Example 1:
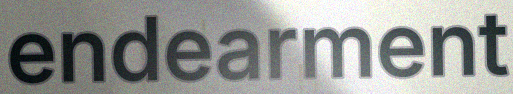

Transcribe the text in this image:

endearment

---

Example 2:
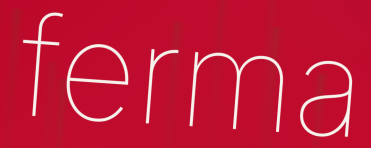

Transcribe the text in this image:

ferma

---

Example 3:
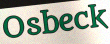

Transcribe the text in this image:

Osbeck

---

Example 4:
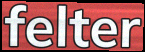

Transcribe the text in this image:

felter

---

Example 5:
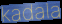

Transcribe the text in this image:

kadala